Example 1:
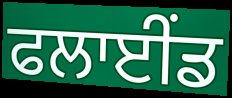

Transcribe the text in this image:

ਫਲਾਈਂਡ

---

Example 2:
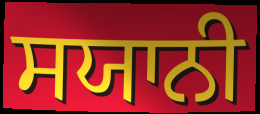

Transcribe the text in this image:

ਸਯਾਨੀ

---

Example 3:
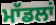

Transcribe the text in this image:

ਮਾੱਡਲਾਂ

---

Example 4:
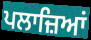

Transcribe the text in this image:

ਪਲਾਜ਼ਿਆਂ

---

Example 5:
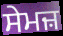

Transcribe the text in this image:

ਸੇਮਜ਼